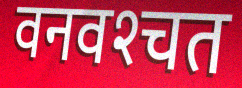
वनवश्चत